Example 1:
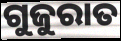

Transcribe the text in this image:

ଗୁଜୁରାତ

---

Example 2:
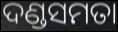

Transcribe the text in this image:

ଦଣ୍ଡସମତା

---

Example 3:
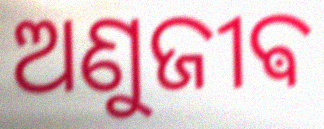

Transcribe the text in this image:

ଅଣୁଜୀଵ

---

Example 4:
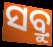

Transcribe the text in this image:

ସବ୍ରୁ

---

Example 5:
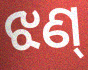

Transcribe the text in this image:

ଝଣ୍